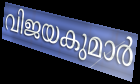
വിജയകുമാർ